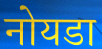
नोयडा